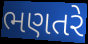
ભણતરે